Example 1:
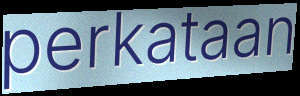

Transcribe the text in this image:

perkataan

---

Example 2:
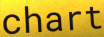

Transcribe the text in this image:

chart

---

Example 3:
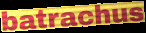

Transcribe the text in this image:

batrachus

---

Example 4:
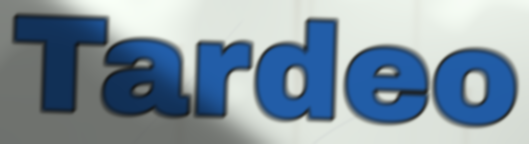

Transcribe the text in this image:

Tardeo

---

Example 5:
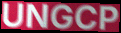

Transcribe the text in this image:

UNGCP